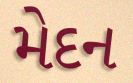
મેદન